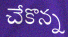
చేకొన్న